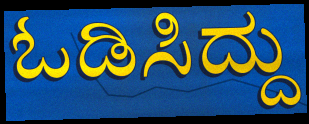
ಓಡಿಸಿದ್ದು